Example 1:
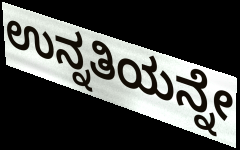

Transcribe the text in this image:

ಉನ್ನತಿಯನ್ನೇ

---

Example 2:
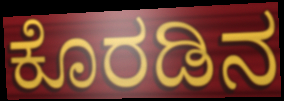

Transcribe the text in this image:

ಕೊರಡಿನ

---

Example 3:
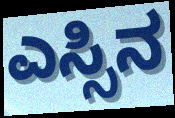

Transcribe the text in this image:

ಎಸ್ಸಿನ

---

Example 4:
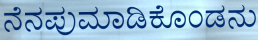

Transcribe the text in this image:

ನೆನಪುಮಾಡಿಕೊಂಡನು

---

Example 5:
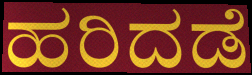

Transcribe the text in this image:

ಹರಿದಡೆ